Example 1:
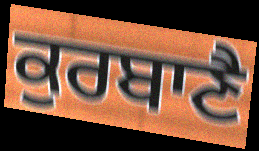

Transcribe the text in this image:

ਕੁਰਬਾਣੈ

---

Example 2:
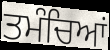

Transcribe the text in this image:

ਤਮੰਚਿਆਂ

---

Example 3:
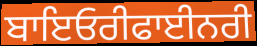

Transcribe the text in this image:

ਬਾਇਓਰੀਫਾਈਨਰੀ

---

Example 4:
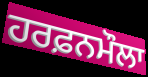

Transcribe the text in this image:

ਹਰਫ਼ਨਮੌਲਾ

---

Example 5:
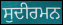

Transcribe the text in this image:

ਸੁਦੀਰਮਨ